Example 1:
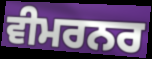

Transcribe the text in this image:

ਵੀਮਰਨਰ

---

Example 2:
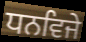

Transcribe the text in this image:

ਧਨਵਿਜੇ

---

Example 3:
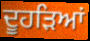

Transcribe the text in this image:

ਦੂਹੜਿਆਂ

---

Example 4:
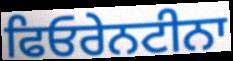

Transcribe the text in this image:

ਫਿਓਰੇਨਟੀਨਾ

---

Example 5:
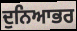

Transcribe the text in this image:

ਦੁਨਿਆਭਰ